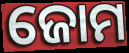
ଜୋମ